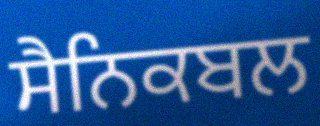
ਸੈਨਿਕਬਲ